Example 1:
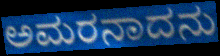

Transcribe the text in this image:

ಅಮರನಾದನು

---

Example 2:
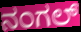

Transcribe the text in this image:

ನಂಗಲ್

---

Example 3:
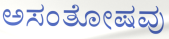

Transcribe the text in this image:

ಅಸಂತೋಷವು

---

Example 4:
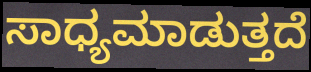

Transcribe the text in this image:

ಸಾಧ್ಯಮಾಡುತ್ತದೆ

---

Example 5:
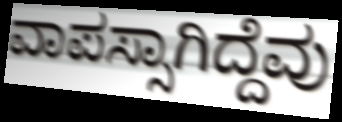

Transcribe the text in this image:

ವಾಪಸ್ಸಾಗಿದ್ದೆವು